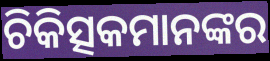
ଚିକିତ୍ସକମାନଙ୍କର